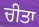
ਚੀਤਾ